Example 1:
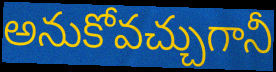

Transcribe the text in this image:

అనుకోవచ్చుగానీ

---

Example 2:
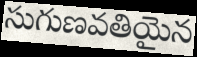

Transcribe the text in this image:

సుగుణవతియైన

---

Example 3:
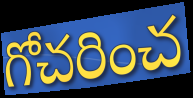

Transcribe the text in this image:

గోచరించ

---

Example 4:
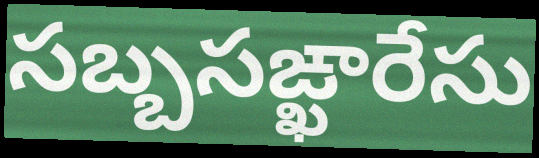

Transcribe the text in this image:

సబ్బసఙ్ఖారేసు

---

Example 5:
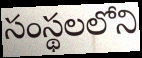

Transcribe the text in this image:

సంస్థలలోని